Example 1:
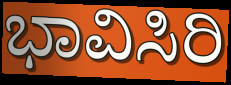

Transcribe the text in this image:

ಭಾವಿಸಿರಿ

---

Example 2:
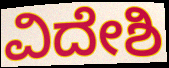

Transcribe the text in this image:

ವಿದೇಶಿ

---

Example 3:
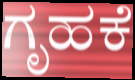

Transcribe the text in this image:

ಗೃಹಕೆ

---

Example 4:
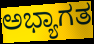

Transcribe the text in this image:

ಅಭ್ಯಾಗತ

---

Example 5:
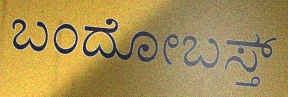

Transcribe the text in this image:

ಬಂದೋಬಸ್ತ್